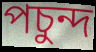
পচুন্দ